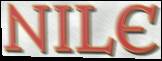
NILE